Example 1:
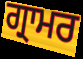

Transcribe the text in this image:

ਗ੍ਰਾਮਰ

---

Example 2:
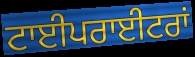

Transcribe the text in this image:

ਟਾਈਪਰਾਈਟਰਾਂ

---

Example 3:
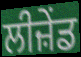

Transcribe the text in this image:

ਲੀਜ਼ੇਂਡ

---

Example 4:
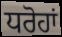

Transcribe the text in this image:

ਧਰੋਹਾਂ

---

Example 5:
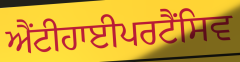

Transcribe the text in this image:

ਐਂਟੀਹਾਈਪਰਟੈਂਸਿਵ